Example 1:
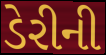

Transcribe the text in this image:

ડેરીની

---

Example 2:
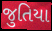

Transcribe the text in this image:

જુતિયા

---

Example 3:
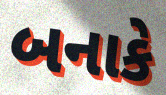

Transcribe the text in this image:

બનાકે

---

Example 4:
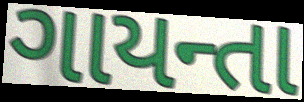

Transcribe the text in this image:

ગાયન્તા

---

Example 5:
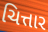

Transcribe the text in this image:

ચિત્તાર